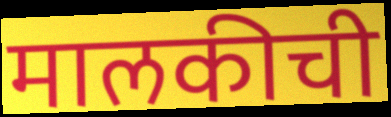
मालकीची